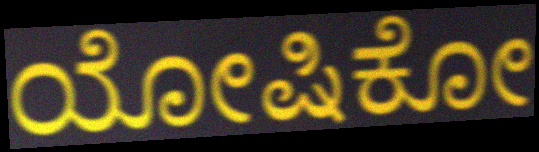
ಯೋಷಿಕೋ